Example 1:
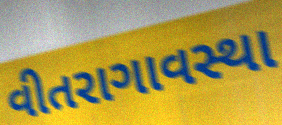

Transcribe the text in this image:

વીતરાગાવસ્થા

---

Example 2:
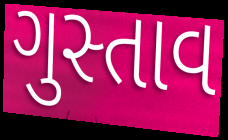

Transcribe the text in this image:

ગુસ્તાવ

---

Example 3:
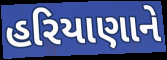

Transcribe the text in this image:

હરિયાણાને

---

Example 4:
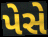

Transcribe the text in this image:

પેસે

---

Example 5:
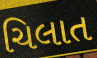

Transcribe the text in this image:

ચિલાત